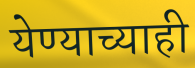
येण्याच्याही